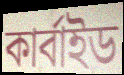
কার্বাইড